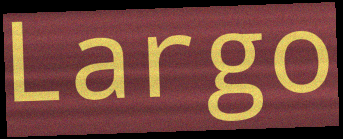
Largo